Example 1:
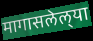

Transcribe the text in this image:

मागासलेल्या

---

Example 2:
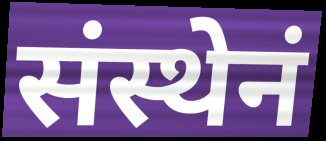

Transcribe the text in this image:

संस्थेनं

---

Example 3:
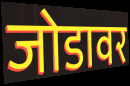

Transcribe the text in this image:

जोडावर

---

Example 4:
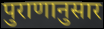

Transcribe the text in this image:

पुराणानुसार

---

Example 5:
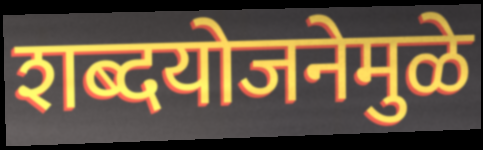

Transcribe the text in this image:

शब्दयोजनेमुळे